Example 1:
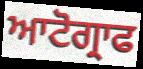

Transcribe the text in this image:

ਆਟੋਗ੍ਰਾਫ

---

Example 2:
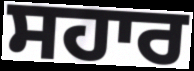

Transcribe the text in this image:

ਸਹਾਰ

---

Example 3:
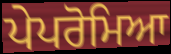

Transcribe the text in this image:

ਪੇਪਰੋਮਿਆ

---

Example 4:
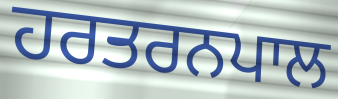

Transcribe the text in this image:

ਹਰਤਰਨਪਾਲ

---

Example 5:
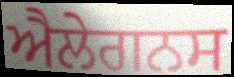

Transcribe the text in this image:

ਐਲੇਗਨਸ